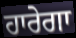
ਹਾਰੇਗਾ